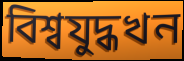
বিশ্বযুদ্ধখন